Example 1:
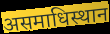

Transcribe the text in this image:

असमाधिस्थान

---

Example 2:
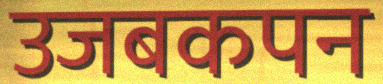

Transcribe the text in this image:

उजबकपन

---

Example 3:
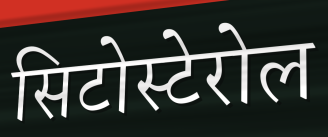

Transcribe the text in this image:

सिटोस्टेरोल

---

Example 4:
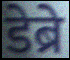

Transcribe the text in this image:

डेब्रे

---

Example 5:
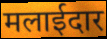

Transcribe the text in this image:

मलाईदार